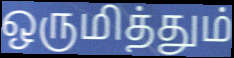
ஒருமித்தும்